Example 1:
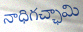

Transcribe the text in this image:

నాధిగచ్ఛామి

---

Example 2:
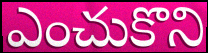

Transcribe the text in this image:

ఎంచుకొని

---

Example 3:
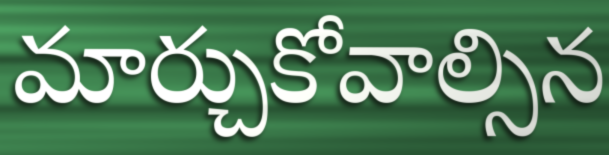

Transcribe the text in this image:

మార్చుకోవాల్సిన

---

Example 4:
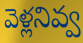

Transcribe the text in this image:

వెళ్లనివ్వ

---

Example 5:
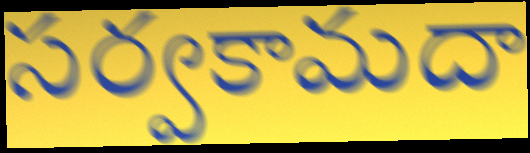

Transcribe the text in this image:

సర్వకామదా